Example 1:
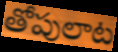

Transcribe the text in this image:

తోపులాట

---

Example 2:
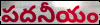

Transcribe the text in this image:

పదనీయం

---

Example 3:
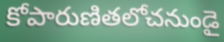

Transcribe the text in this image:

కోపారుణితలోచనుండై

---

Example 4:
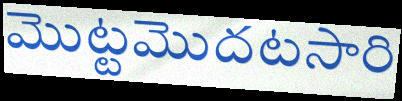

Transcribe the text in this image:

మొట్టమొదటసారి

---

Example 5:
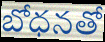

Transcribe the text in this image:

బోధనతో